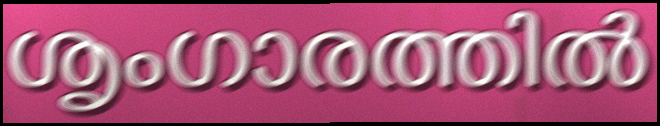
ശൃംഗാരത്തിൽ